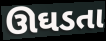
ઊઘડતા